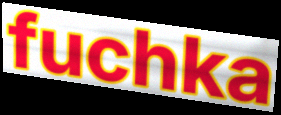
fuchka